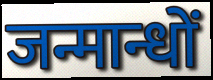
जन्मान्धों